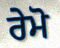
ਰੇਮੋ